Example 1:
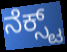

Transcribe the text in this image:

ನೆಕ್ಸ್ಟ್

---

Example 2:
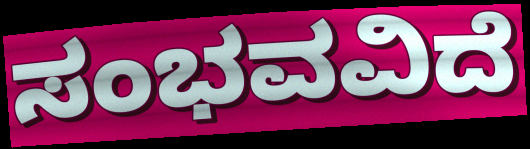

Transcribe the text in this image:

ಸಂಭವವಿದೆ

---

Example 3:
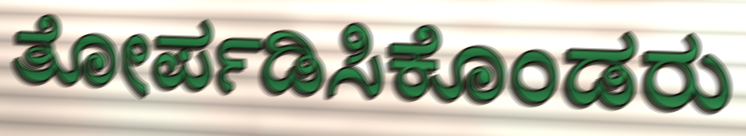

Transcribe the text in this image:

ತೋರ್ಪಡಿಸಿಕೊಂಡರು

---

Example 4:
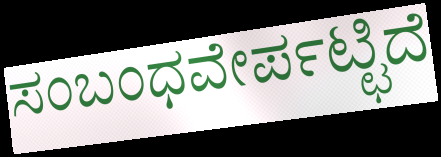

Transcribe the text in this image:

ಸಂಬಂಧವೇರ್ಪಟ್ಟಿದೆ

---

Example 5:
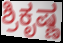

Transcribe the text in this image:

ಶ್ರಿಕೃಷ್ಣ